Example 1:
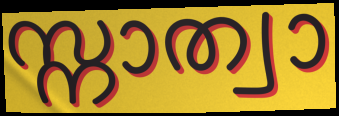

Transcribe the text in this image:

സ്നാത്വാ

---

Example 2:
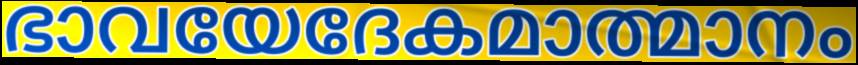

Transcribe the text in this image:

ഭാവയേദേകമാത്മാനം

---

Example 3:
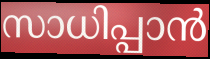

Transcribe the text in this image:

സാധിപ്പാൻ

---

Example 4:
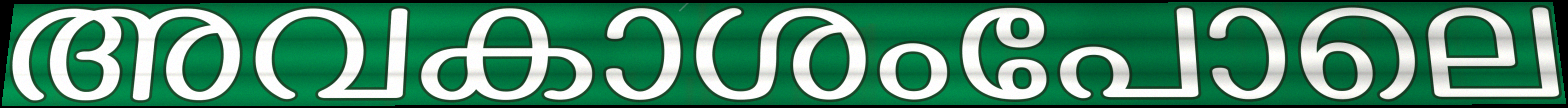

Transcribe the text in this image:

അവകാശംപോലെ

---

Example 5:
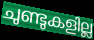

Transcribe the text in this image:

ചുണ്ടുകളില്ല